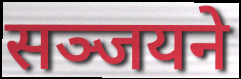
सञ्जयने